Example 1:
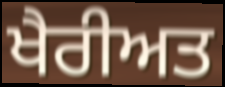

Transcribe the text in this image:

ਖੈਰੀਅਤ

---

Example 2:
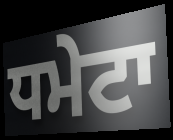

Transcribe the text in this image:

ਧਮੇਟਾ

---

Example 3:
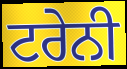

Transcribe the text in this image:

ਟਰੇਨੀ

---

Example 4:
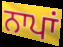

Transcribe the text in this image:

ਨਾਪਾਂ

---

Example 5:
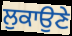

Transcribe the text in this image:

ਲੁਕਾਉਣੇ